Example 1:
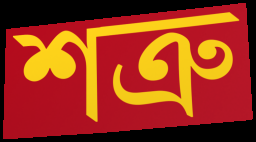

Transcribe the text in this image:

শত্রু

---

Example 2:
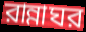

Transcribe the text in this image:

রান্নাঘর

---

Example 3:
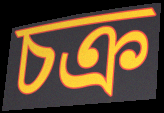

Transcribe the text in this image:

চক্র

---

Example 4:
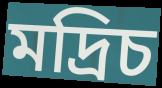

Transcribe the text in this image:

মদ্রিচ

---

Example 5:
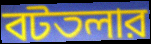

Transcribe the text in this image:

বটতলার